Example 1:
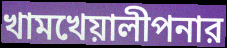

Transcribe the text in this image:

খামখেয়ালীপনার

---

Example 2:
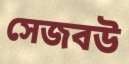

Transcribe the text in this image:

সেজবউ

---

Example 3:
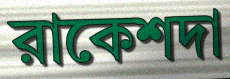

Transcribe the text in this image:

রাকেশদা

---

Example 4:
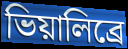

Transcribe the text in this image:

ভিয়ালিব্রে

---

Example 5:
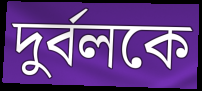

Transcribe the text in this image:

দুর্বলকে